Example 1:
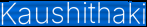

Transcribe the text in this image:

Kaushithaki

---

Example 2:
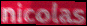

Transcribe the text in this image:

nicolas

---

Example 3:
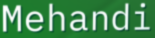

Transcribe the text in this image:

Mehandi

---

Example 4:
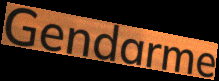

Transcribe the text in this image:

Gendarme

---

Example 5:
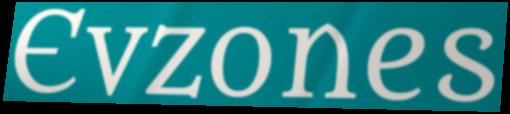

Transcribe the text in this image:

Evzones